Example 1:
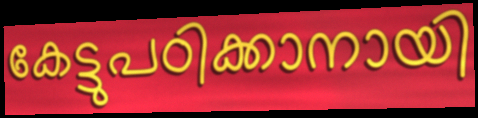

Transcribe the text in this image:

കേട്ടുപഠിക്കാനായി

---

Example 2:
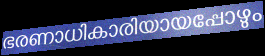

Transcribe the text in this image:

ഭരണാധികാരിയായപ്പോഴും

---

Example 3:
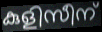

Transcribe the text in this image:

കുളിസീന്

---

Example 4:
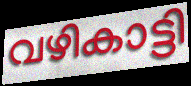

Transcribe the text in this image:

വഴികാട്ടി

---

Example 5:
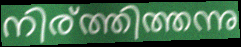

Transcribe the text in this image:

നിര്ത്തിത്തന്നു